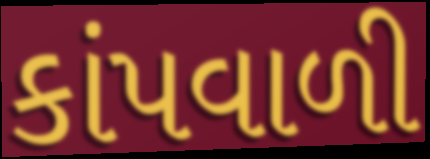
કાંપવાળી